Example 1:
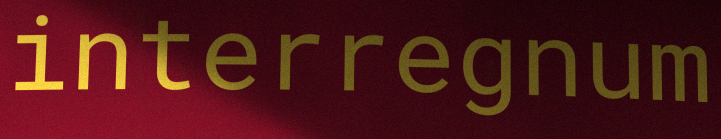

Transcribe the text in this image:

interregnum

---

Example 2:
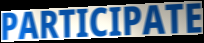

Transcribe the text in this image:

PARTICIPATE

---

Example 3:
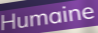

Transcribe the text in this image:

Humaine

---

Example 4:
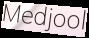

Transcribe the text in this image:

Medjool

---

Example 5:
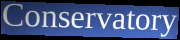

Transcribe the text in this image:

Conservatory